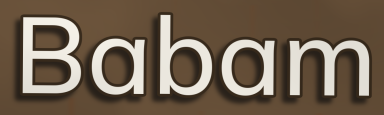
Babam